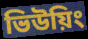
ভিউয়িং